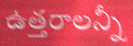
ఉత్తరాలన్నీ